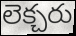
లెక్చరు